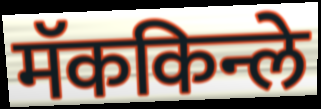
मॅककिन्ले